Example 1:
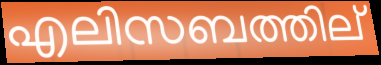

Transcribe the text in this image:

എലിസബത്തില്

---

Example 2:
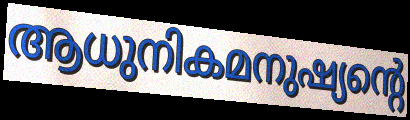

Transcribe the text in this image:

ആധുനികമനുഷ്യന്റെ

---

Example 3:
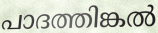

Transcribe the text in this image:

പാദത്തിങ്കൽ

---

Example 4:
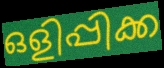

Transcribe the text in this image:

ഒളിപ്പിക്ക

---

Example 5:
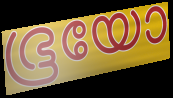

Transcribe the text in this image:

ഭൂയോ